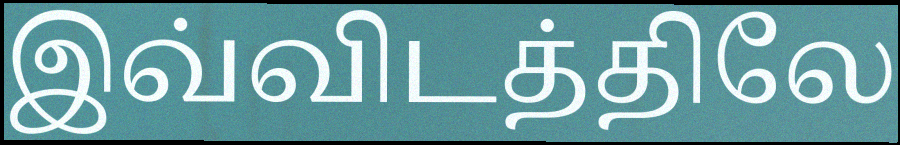
இவ்விடத்திலே